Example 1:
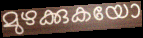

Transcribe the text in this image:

മുഴക്കുകയോ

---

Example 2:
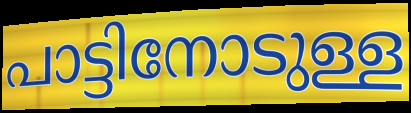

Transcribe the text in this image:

പാട്ടിനോടുള്ള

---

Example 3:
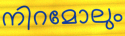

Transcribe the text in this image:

നിറമോലും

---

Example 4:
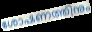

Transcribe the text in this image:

ശോഷണത്തിനും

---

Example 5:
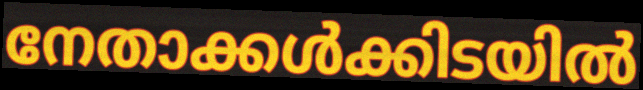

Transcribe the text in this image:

നേതാക്കൾക്കിടയിൽ